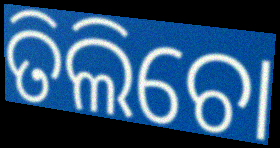
ତିଲିଚୋ